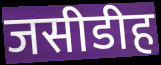
जसीडीह